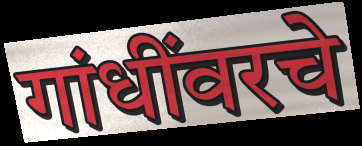
गांधींवरचे